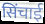
सिंचाई